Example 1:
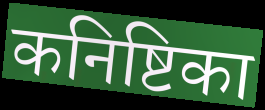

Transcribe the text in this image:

कनिष्टिका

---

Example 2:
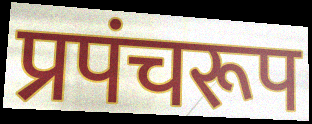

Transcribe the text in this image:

प्रपंचरूप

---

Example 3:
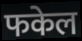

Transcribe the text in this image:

फकेल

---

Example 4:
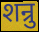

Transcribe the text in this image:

शन्रु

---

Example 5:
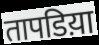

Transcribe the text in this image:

तापडिय़ा